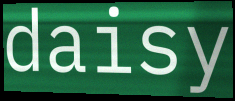
daisy